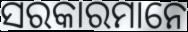
ସରକାରମାନେ